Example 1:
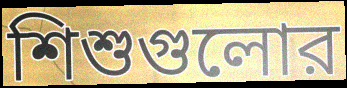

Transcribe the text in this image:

শিশুগুলোর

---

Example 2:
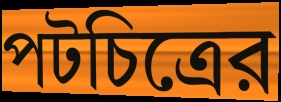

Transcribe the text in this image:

পটচিত্রের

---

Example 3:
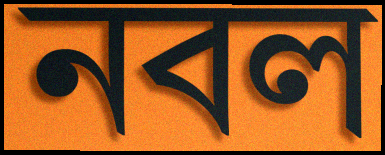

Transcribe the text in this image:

নবল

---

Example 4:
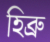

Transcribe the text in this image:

হিব্রু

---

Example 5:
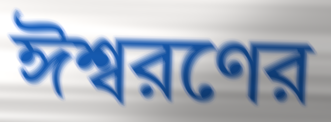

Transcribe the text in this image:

ঈশ্বরণের